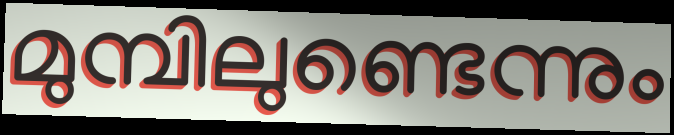
മുമ്പിലുണ്ടെന്നും